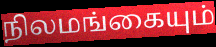
நிலமங்கையும்